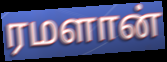
ரமளான்